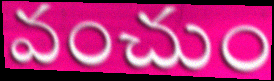
వంచుం